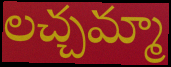
లచ్చమ్మా